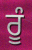
ਰੂੰ